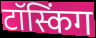
टॉस्किंग